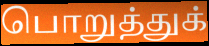
பொறுத்துக்